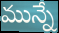
మున్నే